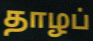
தாழப்